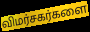
விமர்சகர்களை